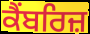
ਕੈਂਬਰਿਜ਼